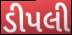
ડીપલી